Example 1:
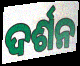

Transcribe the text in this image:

ଦର୍ଶନ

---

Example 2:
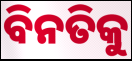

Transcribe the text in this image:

ବିନତିକୁ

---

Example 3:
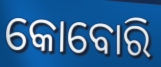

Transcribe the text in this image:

କୋବୋରି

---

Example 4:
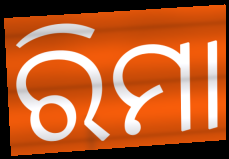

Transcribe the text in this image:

ରିମା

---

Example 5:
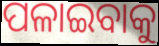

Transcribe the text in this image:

ପଳାଇବାକୁ